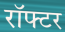
रॉफ्टर